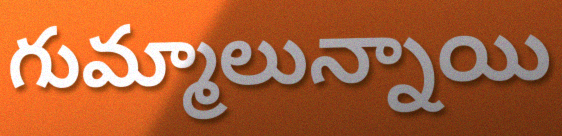
గుమ్మాలున్నాయి